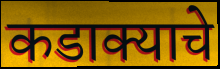
कडाक्याचे